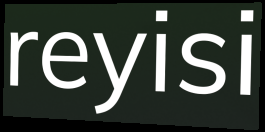
reyisi